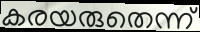
കരയരുതെന്ന്